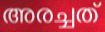
അരച്ചത്